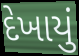
દેખાયું